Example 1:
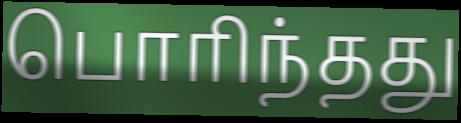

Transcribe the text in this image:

பொரிந்தது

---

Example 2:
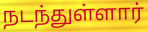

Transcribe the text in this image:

நடந்துள்ளார்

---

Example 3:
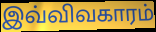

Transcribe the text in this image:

இவ்விவகாரம்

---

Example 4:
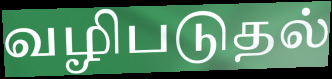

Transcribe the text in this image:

வழிபடுதல்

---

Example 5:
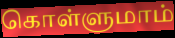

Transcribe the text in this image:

கொள்ளுமாம்